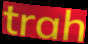
trah